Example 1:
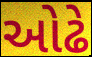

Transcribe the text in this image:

ઓઢે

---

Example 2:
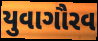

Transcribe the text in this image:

યુવાગૌરવ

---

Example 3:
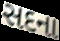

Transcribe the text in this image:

સદના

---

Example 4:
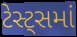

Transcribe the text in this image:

ટેસ્ટ્સમાં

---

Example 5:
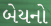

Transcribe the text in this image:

બેયનો